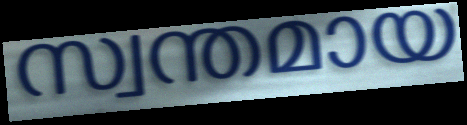
സ്വന്തമായ